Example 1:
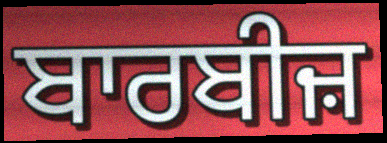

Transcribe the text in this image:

ਬਾਰਬੀਜ਼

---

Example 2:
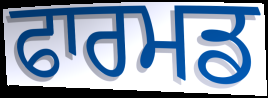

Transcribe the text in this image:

ਫਾਰਮਡ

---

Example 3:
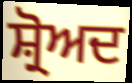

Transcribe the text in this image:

ਸ਼੍ਰੋਅਦ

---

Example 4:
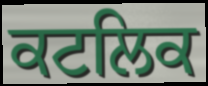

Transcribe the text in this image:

ਕਟਲਿਕ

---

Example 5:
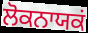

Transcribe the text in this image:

ਲੋਕਨਾਯਕਂ